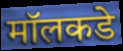
मॉलकडे